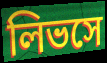
লিভসে